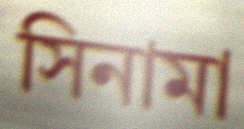
সিনামা